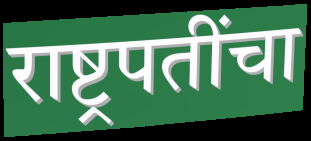
राष्ट्रपतींचा